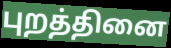
புறத்தினை